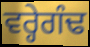
ਵਰ੍ਹੇਗੰਢ